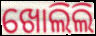
ଖୋଲିଲି